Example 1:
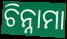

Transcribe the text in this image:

ଚିନ୍ନାମା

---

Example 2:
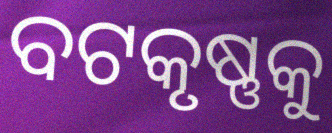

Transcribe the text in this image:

ବଟକୃଷ୍ଣକୁ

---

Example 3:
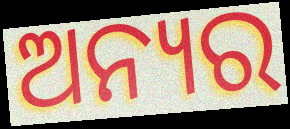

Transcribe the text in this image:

ଅନ୍ୟର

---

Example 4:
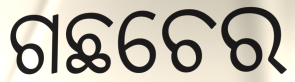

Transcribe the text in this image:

ଗଛଚେର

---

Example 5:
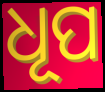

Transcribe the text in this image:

ଧୂପ